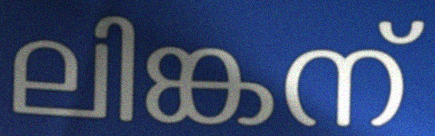
ലിങ്കന്